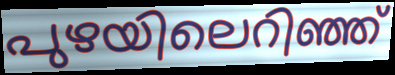
പുഴയിലെറിഞ്ഞ്